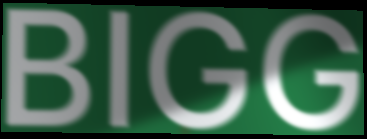
BIGG